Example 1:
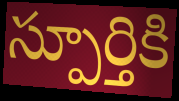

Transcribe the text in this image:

స్పూర్తికి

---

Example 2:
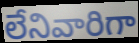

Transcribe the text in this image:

లేనివారిగా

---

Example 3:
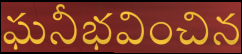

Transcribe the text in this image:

ఘనీభవించిన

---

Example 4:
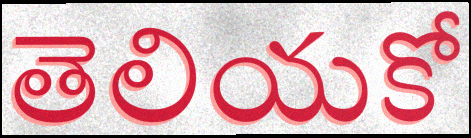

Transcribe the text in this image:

తెలియకో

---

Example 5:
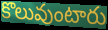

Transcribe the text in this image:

కొలువుంటారు